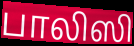
பாலிஸி